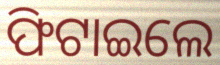
ଫିଟାଇଲେ